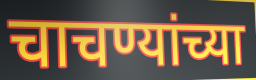
चाचण्यांच्या